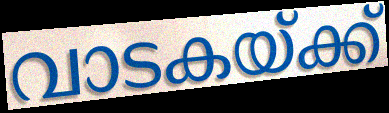
വാടകയ്ക്ക്